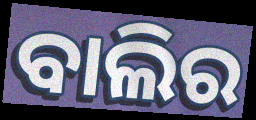
ବାଲିର